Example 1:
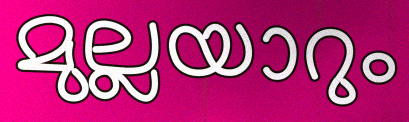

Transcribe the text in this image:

മുല്ലയാറും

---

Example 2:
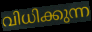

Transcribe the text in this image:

വിധിക്കുന്ന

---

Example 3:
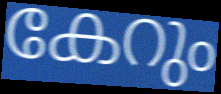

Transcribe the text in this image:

കേറും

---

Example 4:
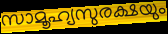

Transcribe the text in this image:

സാമൂഹ്യസുരക്ഷയും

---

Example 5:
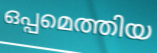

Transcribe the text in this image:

ഒപ്പമെത്തിയ